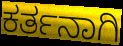
ಕರ್ತನಾಗಿ